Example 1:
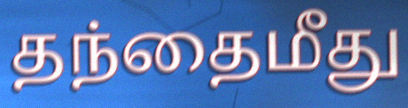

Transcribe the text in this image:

தந்தைமீது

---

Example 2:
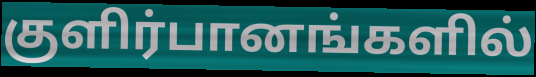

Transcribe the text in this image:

குளிர்பானங்களில்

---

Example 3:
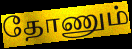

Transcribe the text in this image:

தோணும்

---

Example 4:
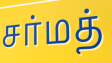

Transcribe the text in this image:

சர்மத்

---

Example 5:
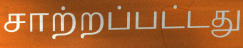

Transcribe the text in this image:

சாற்றப்பட்டது